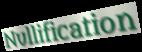
Nullification